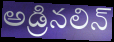
అడ్రినలిన్